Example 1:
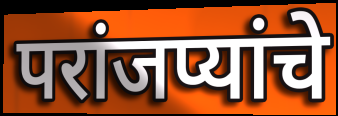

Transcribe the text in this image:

परांजप्यांचे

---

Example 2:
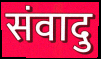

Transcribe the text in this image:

संवादु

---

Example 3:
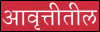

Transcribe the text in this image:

आवृत्तीतील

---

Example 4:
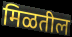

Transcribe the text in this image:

मिळतील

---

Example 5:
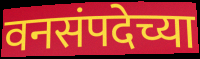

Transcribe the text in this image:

वनसंपदेच्या